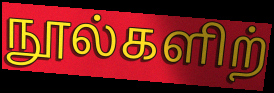
நூல்களிற்